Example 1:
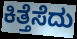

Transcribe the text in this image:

ಕಿತ್ತೆಸೆದು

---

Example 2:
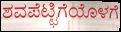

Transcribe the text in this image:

ಶವಪೆಟ್ಟಿಗೆಯೊಳಗೆ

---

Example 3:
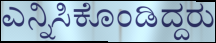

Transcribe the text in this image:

ಎನ್ನಿಸಿಕೊಂಡಿದ್ದರು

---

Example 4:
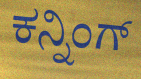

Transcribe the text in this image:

ಕನ್ನಿಂಗ್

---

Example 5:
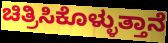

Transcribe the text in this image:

ಚಿತ್ರಿಸಿಕೊಳ್ಳುತ್ತಾನೆ